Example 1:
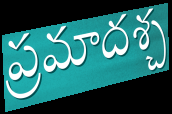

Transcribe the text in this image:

ప్రమాదశ్చ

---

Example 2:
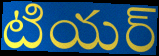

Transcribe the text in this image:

టియర్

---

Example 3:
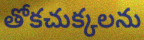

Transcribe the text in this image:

తోకచుక్కలను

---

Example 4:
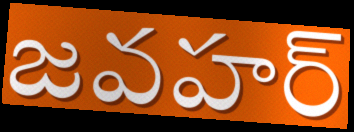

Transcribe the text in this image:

జవహర్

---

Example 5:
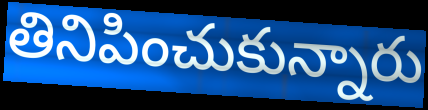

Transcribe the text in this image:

తినిపించుకున్నారు